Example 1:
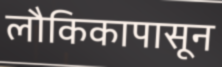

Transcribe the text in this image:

लौकिकापासून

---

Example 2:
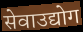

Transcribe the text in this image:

सेवाउद्योग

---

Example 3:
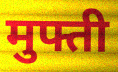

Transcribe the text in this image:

मुफ्ती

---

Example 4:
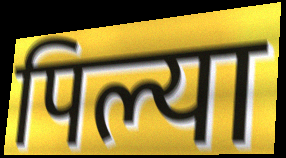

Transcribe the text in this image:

पिल्या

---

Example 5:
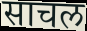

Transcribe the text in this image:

साचल